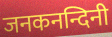
जनकनन्दिनी